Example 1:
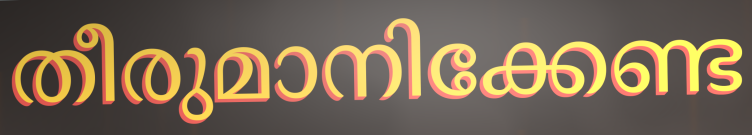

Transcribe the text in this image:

തീരുമാനിക്കേണ്ട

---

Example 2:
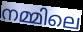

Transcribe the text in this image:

നമ്മിലെ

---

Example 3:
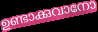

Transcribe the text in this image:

ഉണ്ടാക്കുവാനോ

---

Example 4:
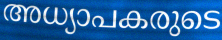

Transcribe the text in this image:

അധ്യാപകരുടെ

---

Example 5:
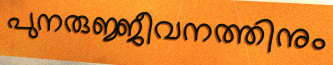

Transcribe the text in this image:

പുനരുജ്ജീവനത്തിനും